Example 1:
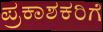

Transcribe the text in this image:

ಪ್ರಕಾಶಕರಿಗೆ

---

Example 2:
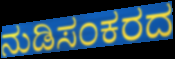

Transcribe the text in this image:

ನುಡಿಸಂಕರದ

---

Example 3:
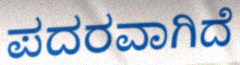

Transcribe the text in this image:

ಪದರವಾಗಿದೆ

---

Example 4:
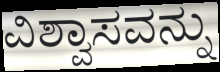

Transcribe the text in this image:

ವಿಶ್ವಾಸವನ್ನು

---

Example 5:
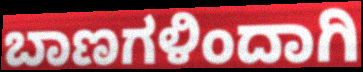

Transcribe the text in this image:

ಬಾಣಗಳಿಂದಾಗಿ